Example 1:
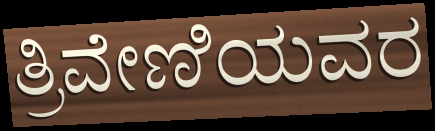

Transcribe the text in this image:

ತ್ರಿವೇಣಿಯವರ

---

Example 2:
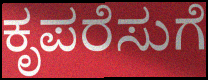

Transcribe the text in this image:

ಕೃಪರೆಸುಗೆ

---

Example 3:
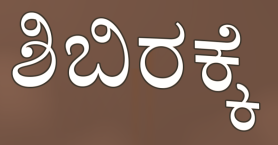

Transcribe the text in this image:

ಶಿಬಿರಕ್ಕೆ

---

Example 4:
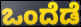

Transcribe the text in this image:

ಒಂದೆಡೆ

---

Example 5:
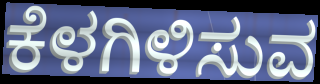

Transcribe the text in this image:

ಕೆಳಗಿಳಿಸುವ